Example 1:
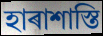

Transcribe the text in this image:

হাৰাশাস্তি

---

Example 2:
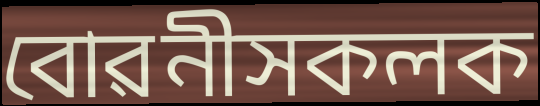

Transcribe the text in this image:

বোৱনীসকলক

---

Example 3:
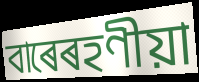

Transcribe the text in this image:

বাৰেৰহণীয়া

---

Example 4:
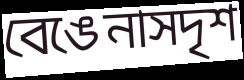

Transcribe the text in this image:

বেঙেনাসদৃশ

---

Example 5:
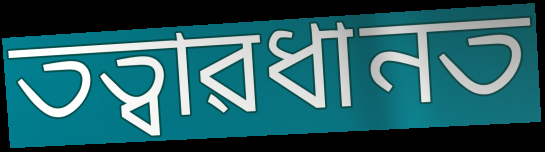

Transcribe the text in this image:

তত্বাৱধানত